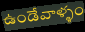
ఉండేవాళ్ళం